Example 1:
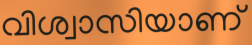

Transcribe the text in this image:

വിശ്വാസിയാണ്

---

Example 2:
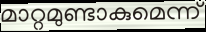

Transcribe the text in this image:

മാറ്റമുണ്ടാകുമെന്ന്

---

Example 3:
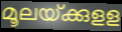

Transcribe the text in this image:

മൂലയ്‌ക്കുളള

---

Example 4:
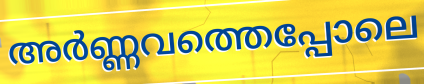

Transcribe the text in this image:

അർണ്ണവത്തെപ്പോലെ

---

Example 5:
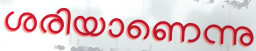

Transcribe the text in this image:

ശരിയാണെന്നു